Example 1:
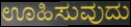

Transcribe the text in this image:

ಊಹಿಸುವುದು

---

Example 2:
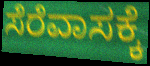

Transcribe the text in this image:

ಸೆರೆವಾಸಕ್ಕೆ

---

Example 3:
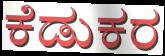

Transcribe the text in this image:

ಕೆಡುಕರ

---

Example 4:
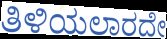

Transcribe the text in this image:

ತಿಳಿಯಲಾರದೇ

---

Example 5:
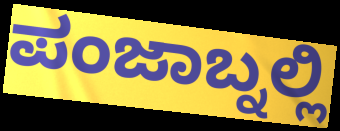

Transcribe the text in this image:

ಪಂಜಾಬ್ನಲ್ಲಿ